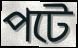
পটে